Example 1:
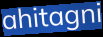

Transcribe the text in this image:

ahitagni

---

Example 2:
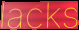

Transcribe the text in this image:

lacks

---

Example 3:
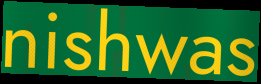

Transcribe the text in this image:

nishwas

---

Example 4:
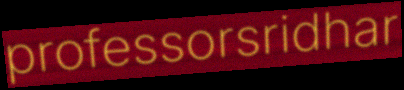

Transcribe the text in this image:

professorsridhar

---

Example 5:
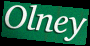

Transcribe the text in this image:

Olney